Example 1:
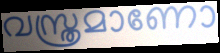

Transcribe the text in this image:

വസ്ത്രമാണോ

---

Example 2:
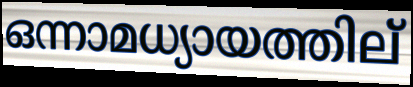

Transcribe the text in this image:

ഒന്നാമധ്യായത്തില്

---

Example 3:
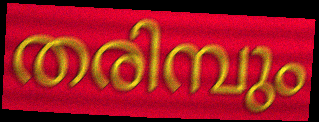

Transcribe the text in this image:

തരിമ്പും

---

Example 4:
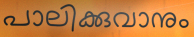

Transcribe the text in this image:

പാലിക്കുവാനും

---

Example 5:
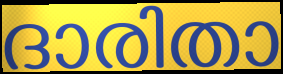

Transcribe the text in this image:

ദാരിതാ